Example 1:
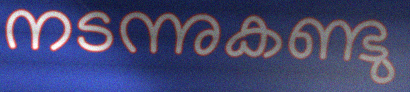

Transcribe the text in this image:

നടന്നുകണ്ടു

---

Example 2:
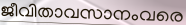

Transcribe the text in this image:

ജീവിതാവസാനംവരെ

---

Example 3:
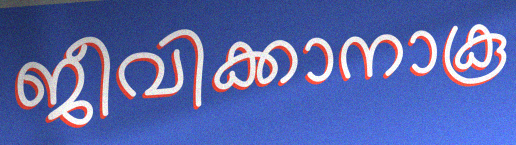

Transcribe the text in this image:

ജീവിക്കാനാകൂ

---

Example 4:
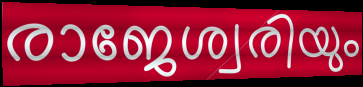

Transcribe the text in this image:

രാജേശ്വരിയും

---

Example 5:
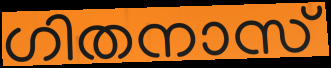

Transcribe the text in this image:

ഗിതനാസ്